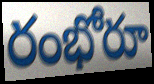
రంభోరూ